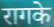
रागके